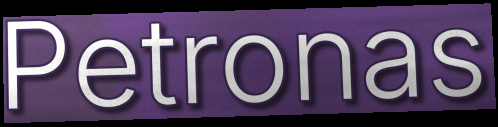
Petronas